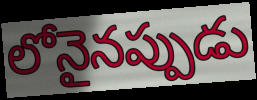
లోనైనప్పుడు